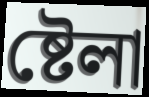
ষ্টেলা